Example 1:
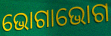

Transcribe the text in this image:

ଭୋଗାଭୋଗ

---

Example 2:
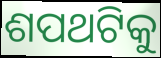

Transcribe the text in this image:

ଶପଥଟିକୁ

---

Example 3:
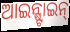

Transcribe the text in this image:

ଆଇନ୍ଷ୍ଟାଇନ୍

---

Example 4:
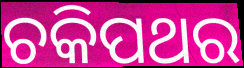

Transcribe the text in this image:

ଚକିପଥର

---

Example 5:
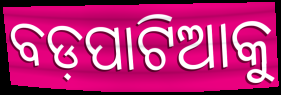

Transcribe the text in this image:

ବଡ଼ପାଟିଆକୁ